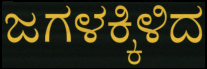
ಜಗಳಕ್ಕಿಳಿದ